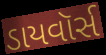
ડાયવૉર્સ